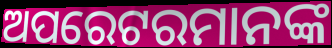
ଅପରେଟରମାନଙ୍କ